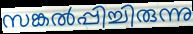
സങ്കൽപ്പിച്ചിരുന്നു